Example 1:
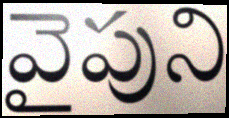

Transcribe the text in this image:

వైపుని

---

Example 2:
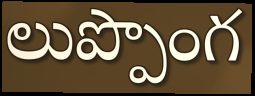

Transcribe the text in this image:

లుప్పొంగ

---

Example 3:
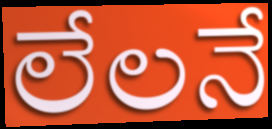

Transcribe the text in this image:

లేలనే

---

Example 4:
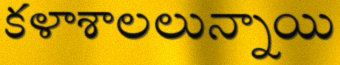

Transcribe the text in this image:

కళాశాలలున్నాయి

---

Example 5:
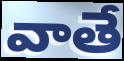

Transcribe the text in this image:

వాతే